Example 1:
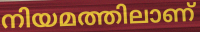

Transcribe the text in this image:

നിയമത്തിലാണ്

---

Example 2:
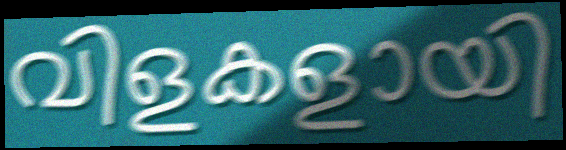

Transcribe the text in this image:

വിളകളായി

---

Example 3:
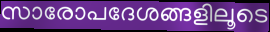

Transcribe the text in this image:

സാരോപദേശങ്ങളിലൂടെ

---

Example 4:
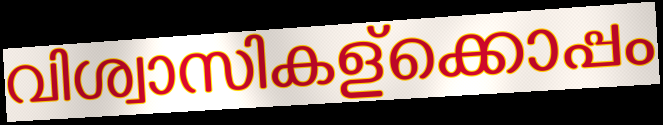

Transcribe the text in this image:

വിശ്വാസികള്ക്കൊപ്പം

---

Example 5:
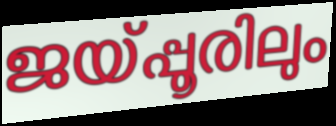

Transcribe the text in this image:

ജയ്പ്പൂരിലും